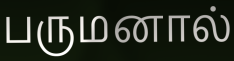
பருமனால்